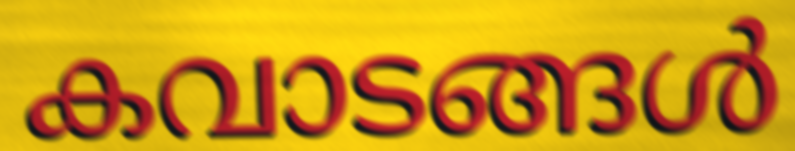
കവാടങ്ങൾ